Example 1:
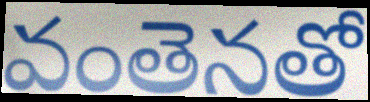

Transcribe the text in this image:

వంతెనతో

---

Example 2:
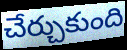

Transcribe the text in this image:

చేర్చుకుంది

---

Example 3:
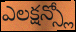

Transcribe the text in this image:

ఎలక్షన్స్లో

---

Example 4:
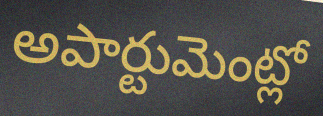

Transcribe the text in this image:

అపార్టుమెంట్లో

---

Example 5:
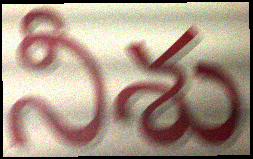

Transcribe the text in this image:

నీశు